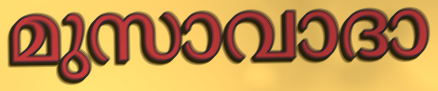
മുസാവാദാ